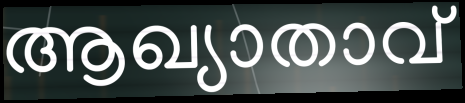
ആഖ്യാതാവ്